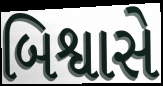
બિશ્વાસે